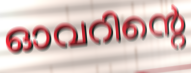
ഓവറിന്റെ